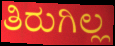
ತಿರುಗಿಲ್ಲ